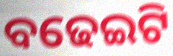
ବଢେଇଟି